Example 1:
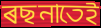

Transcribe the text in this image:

ৰছনাতেই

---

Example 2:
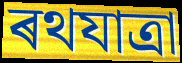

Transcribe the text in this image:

ৰথযাত্ৰা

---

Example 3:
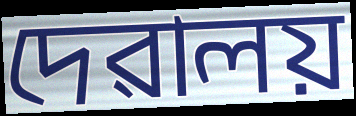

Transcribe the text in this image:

দেৱালয়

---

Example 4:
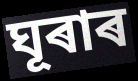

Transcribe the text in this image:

ঘূৰাৰ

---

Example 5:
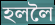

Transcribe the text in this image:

হললৈ